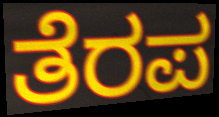
ತೆರಪ